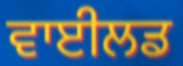
ਵਾਈਲਡ